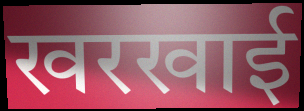
खरखाई